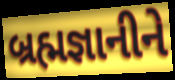
બ્રહ્મજ્ઞાનીને